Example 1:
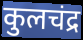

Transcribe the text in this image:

कुलचंद्र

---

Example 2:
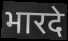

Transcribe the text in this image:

भारदे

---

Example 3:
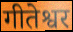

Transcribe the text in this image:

गीतेश्वर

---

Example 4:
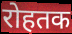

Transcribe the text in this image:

रोहतक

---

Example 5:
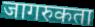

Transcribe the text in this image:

जागरुकता